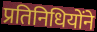
प्रतिनिधियोंने